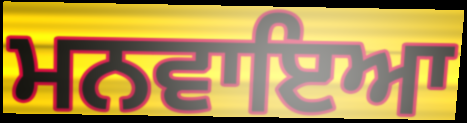
ਮਨਵਾਇਆ